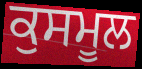
ਕੁਸਮੂਲ